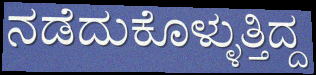
ನಡೆದುಕೊಳ್ಳುತ್ತಿದ್ದ